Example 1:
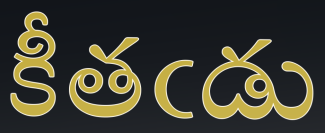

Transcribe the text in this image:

కీతఁడు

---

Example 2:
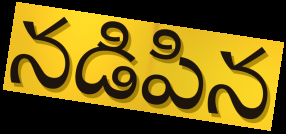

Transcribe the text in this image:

నడిపిన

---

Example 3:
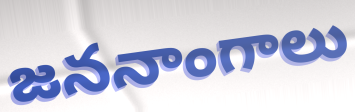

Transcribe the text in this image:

జననాంగాలు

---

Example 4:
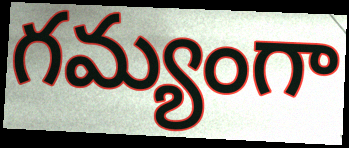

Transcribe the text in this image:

గమ్యంగా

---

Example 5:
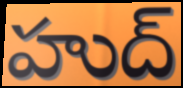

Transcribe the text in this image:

హుద్